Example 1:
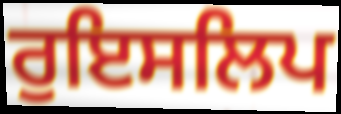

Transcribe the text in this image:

ਰੁਇਸਲਿਪ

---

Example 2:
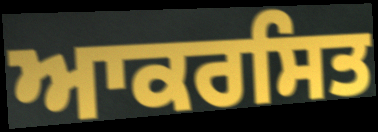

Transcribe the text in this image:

ਆਕਰਸਿਤ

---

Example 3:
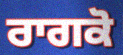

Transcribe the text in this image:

ਰਾਗਕੋ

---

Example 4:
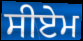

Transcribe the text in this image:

ਸੀਏਮ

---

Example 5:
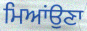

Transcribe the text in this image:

ਮਿਆਂਉਣਾ